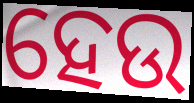
ହେଉ